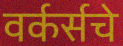
वर्कर्सचे